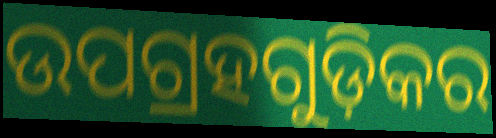
ଉପଗ୍ରହଗୁଡ଼ିକର